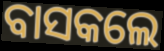
ବାସକଲେ